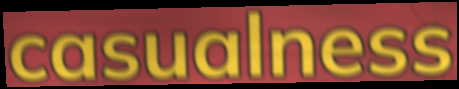
casualness